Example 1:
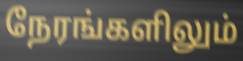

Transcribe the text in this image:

நேரங்களிலும்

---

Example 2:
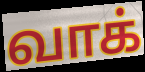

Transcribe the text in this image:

வாக்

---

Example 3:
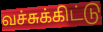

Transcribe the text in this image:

வச்சுக்கிட்டு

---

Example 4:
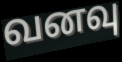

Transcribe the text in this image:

வனவு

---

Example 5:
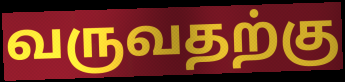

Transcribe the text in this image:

வருவதற்கு